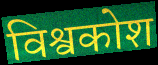
विश्वकोश